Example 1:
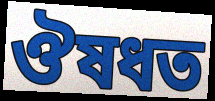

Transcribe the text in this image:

ঔষধত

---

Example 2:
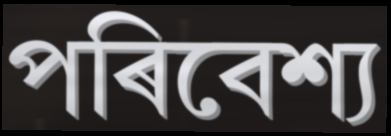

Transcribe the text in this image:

পৰিবেশ্য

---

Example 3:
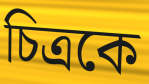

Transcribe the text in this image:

চিত্ৰকে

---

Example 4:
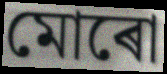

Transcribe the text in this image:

মোৰো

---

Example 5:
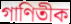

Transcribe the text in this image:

গাণিতীক